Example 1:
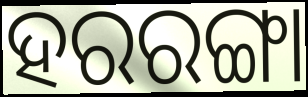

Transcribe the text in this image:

ହରରଙ୍ଗା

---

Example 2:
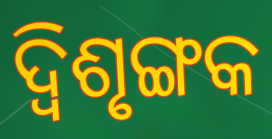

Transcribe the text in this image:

ଦ୍ଵିଶୃଙ୍ଗକ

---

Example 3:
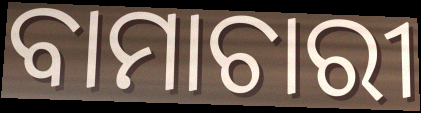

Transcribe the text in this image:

ବାମାଚାରୀ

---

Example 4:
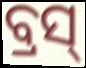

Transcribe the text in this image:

ବ୍ରସ୍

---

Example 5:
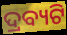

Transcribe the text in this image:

ଦ୍ରବ୍ୟଟି